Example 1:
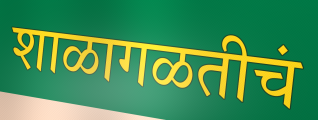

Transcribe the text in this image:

शाळागळतीचं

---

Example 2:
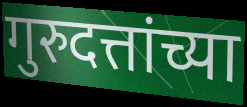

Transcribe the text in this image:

गुरुदत्तांच्या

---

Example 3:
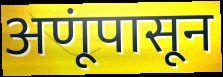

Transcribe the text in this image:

अणूंपासून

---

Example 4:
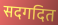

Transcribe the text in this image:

सदगदित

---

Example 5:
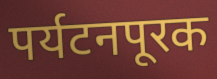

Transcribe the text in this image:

पर्यटनपूरक